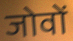
जोवों